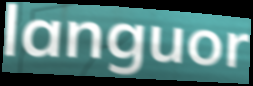
languor